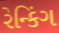
રેન્કિંગ